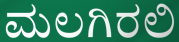
ಮಲಗಿರಲಿ